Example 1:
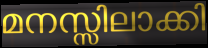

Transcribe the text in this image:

മനസ്സിലാക്കി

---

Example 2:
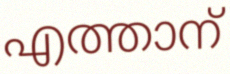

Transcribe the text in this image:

എത്താന്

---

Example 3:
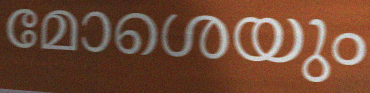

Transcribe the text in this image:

മോശെയും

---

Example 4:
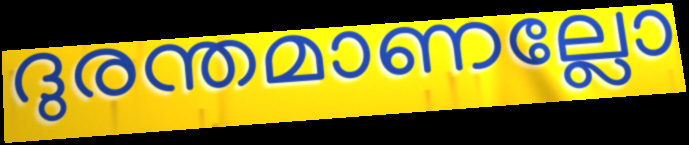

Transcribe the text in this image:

ദുരന്തമാണല്ലോ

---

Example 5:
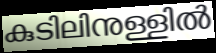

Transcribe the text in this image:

കുടിലിനുള്ളിൽ